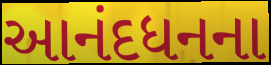
આનંદધનના